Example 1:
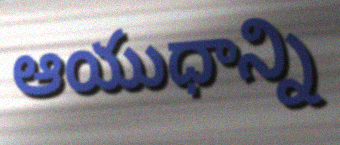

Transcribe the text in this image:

ఆయుధాన్ని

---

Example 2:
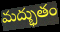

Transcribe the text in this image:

మద్భుతం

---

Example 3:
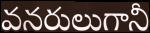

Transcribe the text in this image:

వనరులుగానీ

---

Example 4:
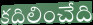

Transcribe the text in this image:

కదిలించేది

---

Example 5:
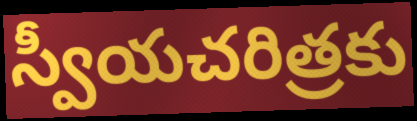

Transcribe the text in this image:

స్వీయచరిత్రకు